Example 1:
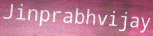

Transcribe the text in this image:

Jinprabhvijay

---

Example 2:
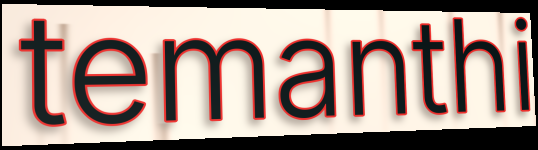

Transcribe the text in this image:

temanthi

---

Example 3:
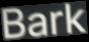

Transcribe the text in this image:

Bark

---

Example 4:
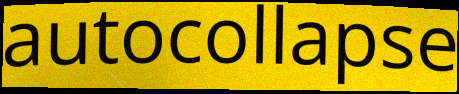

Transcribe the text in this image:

autocollapse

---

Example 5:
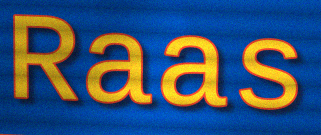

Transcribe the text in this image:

Raas